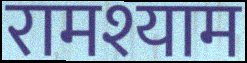
रामश्याम